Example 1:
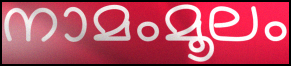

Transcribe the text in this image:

നാമംമൂലം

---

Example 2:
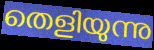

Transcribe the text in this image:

തെളിയുന്നു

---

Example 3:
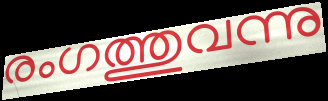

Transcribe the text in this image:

രംഗത്തുവന്നു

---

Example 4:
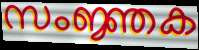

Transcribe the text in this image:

സംജ്ഞക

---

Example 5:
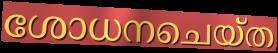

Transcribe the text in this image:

ശോധനചെയ്ത